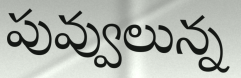
పువ్వులున్న